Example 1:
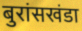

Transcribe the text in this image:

बुरांसखंडा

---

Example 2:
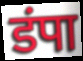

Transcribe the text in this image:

डंपा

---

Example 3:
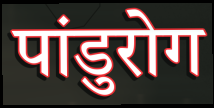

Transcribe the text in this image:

पांडुरोग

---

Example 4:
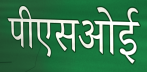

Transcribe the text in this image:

पीएसओई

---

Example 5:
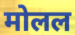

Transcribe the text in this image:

मोलल